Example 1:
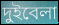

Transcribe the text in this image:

দুইবেলা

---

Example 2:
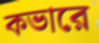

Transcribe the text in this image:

কভারে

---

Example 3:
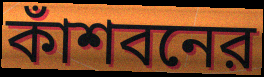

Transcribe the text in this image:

কাঁশবনের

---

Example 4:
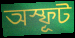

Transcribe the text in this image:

অস্ফূট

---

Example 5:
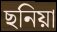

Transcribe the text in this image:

ছনিয়া